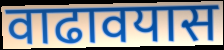
वाढावयास